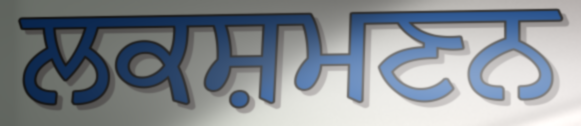
ਲਕਸ਼ਮਣਨ